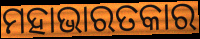
ମହାଭାରତକାର